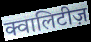
क्वालिटीज़